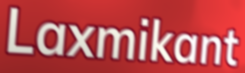
Laxmikant